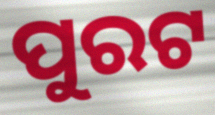
ପୁରଟ